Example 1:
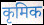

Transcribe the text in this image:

कृमिक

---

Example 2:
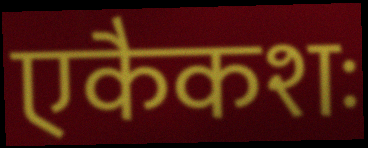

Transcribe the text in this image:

एकैकशः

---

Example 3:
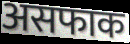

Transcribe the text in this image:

असफाक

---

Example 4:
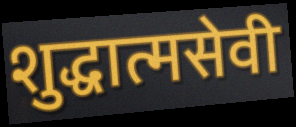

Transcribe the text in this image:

शुद्धात्मसेवी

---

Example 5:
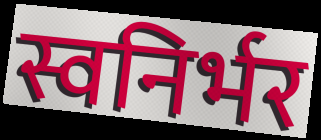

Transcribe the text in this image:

स्वनिर्भर